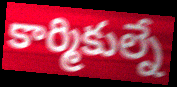
కార్మికుల్నే